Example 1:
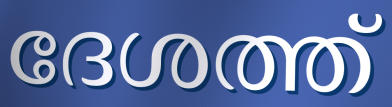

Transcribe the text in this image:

ദേശത്ത്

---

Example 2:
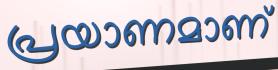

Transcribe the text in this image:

പ്രയാണമാണ്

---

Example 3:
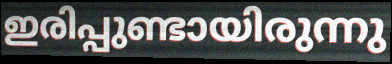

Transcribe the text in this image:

ഇരിപ്പുണ്ടായിരുന്നു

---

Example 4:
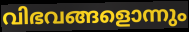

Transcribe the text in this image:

വിഭവങ്ങളൊന്നും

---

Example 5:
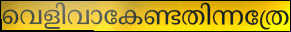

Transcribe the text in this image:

വെളിവാകേണ്ടതിന്നത്രേ